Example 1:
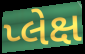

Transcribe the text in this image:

પ્લેક્ષ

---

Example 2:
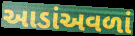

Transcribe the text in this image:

આડાંઅવળાં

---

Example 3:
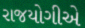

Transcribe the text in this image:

રાજયોગીએ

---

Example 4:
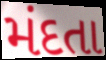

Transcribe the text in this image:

મંદતા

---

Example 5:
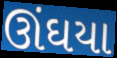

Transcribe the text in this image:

ઊંઘયા